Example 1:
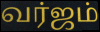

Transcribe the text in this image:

வர்ஜம்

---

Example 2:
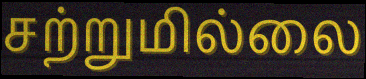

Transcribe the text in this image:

சற்றுமில்லை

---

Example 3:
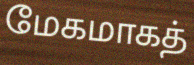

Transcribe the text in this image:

மேகமாகத்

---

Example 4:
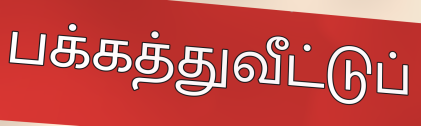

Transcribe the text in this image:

பக்கத்துவீட்டுப்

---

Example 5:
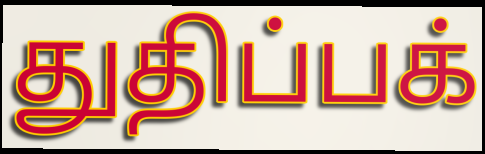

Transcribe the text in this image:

துதிப்பக்